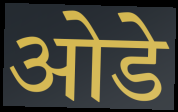
ओडे